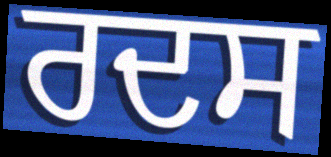
ਰਦਸ